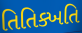
તિતિક્ખતિ